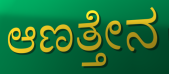
ಆಣತ್ತೇನ